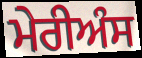
ਮੇਰੀਅੰਸ